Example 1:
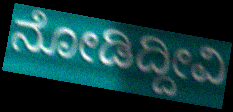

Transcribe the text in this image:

ನೋಡಿದ್ದೀವಿ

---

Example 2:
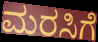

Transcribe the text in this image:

ಮರಸಿಗೆ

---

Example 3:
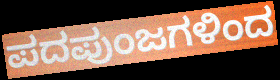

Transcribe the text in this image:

ಪದಪುಂಜಗಳಿಂದ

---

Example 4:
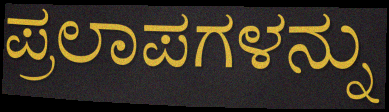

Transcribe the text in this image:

ಪ್ರಲಾಪಗಳನ್ನು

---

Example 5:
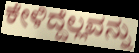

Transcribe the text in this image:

ಕೇಳಿದ್ದೆಲ್ಲವನ್ನು